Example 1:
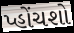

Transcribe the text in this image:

પ્હોંચશો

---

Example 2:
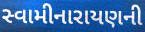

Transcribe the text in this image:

સ્વામીનારાયણની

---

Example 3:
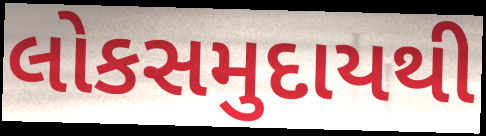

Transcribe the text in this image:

લોકસમુદાયથી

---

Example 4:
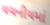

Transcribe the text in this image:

વચનીયમાં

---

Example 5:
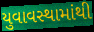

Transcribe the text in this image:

યુવાવસ્થામાંથી